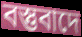
বস্তুবাদে